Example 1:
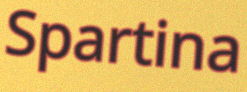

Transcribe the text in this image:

Spartina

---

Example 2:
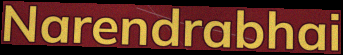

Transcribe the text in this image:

Narendrabhai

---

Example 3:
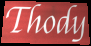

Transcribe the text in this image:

Thody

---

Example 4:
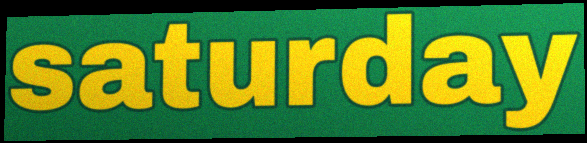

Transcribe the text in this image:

saturday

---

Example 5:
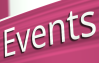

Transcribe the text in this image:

Events